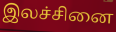
இலச்சினை